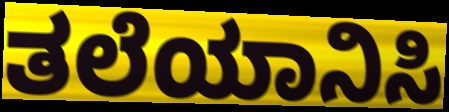
ತಲೆಯಾನಿಸಿ